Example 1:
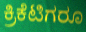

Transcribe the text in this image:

ಕ್ರಿಕೆಟಿಗರೂ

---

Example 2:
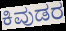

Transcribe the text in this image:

ಕಿವುಡರ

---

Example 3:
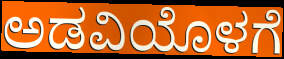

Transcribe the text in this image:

ಅಡವಿಯೊಳಗೆ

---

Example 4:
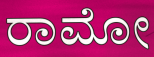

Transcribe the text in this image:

ರಾಮೋ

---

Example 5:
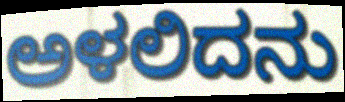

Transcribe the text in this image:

ಅಳಲಿದನು